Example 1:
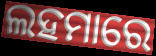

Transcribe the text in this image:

ଲହମାରେ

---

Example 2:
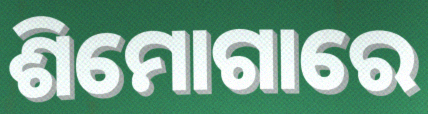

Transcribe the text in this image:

ଶିମୋଗାରେ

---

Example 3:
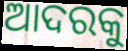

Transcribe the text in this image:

ଆଦରକୁ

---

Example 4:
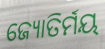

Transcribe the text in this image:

ଜ୍ୟୋତିର୍ମୟ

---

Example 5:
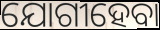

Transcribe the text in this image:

ଯୋଗୀହେବା